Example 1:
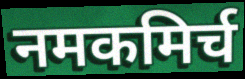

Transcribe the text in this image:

नमकमिर्च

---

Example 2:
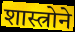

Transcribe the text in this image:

शास्त्रोने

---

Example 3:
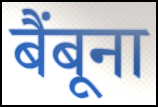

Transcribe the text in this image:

बैंबूना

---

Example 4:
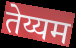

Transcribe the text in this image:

तेय्यम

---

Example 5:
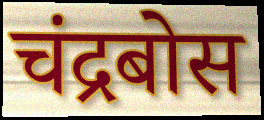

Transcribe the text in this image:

चंद्रबोस